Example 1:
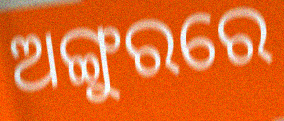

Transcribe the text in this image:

ଅଙ୍ଗୁରରେ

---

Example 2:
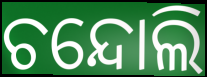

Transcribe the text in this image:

ଚନ୍ଦୋଲି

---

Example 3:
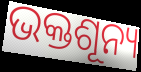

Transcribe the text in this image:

ଭକ୍ତଶୂନ୍ୟ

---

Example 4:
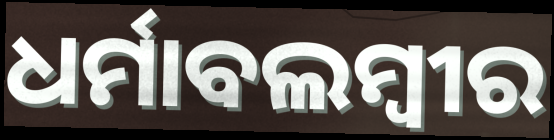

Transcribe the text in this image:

ଧର୍ମାବଲମ୍ବୀର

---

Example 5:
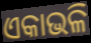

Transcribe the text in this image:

ଏକାଭଳି